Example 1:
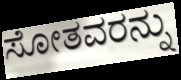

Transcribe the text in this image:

ಸೋತವರನ್ನು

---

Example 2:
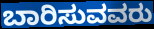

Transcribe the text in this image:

ಬಾರಿಸುವವರು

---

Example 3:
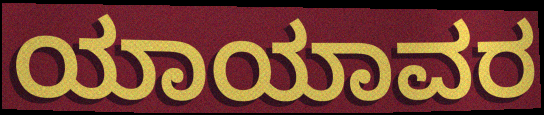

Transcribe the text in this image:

ಯಾಯಾವರ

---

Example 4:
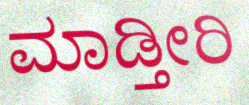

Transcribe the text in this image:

ಮಾಡ್ತೀರಿ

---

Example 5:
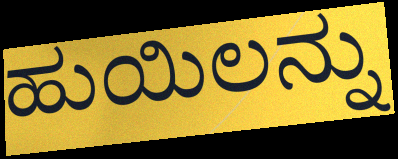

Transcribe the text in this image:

ಹುಯಿಲನ್ನು